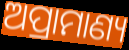
ଅପ୍ରାମାଣ୍ୟ